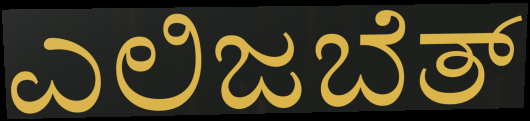
ಎಲಿಜಬೆತ್